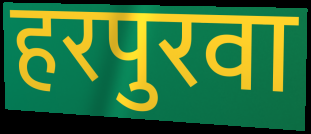
हरपुरवा